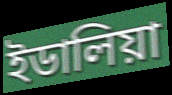
ইডালিয়া